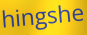
hingshe